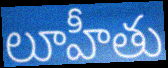
లూహీతు